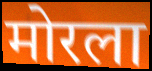
मोरला